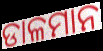
ଡାଳମାନ